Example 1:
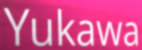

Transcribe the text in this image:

Yukawa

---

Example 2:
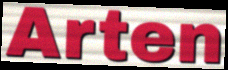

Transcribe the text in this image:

Arten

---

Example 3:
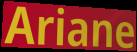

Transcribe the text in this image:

Ariane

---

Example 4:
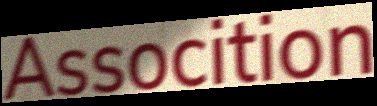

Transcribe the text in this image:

Assocition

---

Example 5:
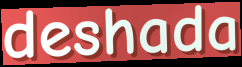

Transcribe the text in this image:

deshada